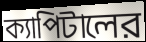
ক্যাপিটালের